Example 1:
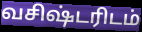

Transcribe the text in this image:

வசிஷ்டரிடம்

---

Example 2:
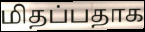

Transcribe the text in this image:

மிதப்பதாக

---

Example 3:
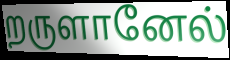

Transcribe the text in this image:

றருளானேல்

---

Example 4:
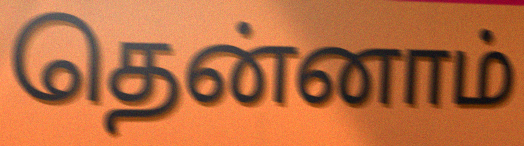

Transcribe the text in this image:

தென்னாம்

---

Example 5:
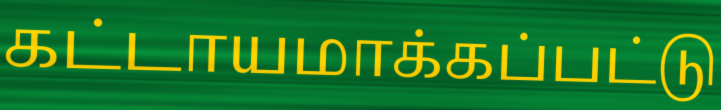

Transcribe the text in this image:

கட்டாயமாக்கப்பட்டு